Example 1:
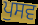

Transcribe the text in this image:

ਪੁਸਵ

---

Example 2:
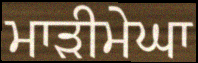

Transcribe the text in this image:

ਮਾੜੀਮੇਘਾ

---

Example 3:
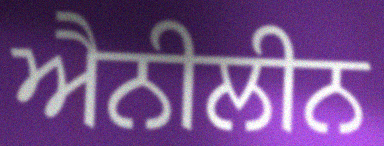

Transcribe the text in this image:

ਐਨੀਲੀਨ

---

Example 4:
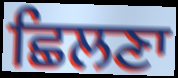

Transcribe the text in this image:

ਛਿਲਣਾ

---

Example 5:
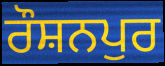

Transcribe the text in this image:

ਰੌਸ਼ਨਪੁਰ